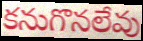
కనుగొనలేవు